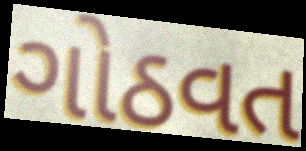
ગોઠવત